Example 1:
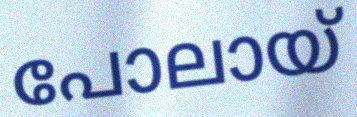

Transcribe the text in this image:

പോലായ്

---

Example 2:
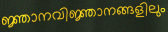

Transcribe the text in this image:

ജ്ഞാനവിജ്ഞാനങ്ങളിലും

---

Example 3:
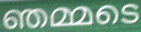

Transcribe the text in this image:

ഞമ്മടെ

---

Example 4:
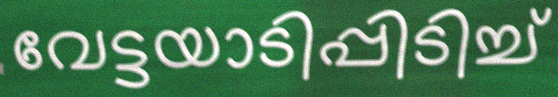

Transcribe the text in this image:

വേട്ടയാടിപ്പിടിച്ച്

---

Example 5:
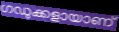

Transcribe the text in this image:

ഗഡുക്കളായാണ്